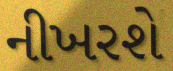
નીખરશે